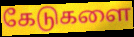
கேடுகளை